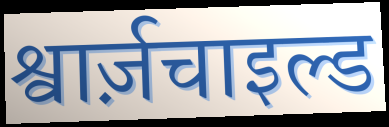
श्वार्ज़चाइल्ड